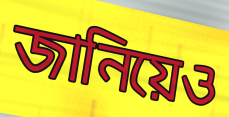
জানিয়েও